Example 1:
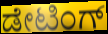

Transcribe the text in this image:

ಡೇಟಿಂಗ್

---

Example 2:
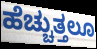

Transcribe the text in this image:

ಹೆಚ್ಚುತ್ತಲೂ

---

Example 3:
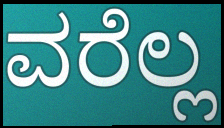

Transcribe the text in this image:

ವರೆಲ್ಲ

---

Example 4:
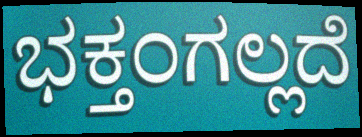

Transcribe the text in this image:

ಭಕ್ತಂಗಲ್ಲದೆ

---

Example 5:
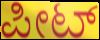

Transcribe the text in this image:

ಪೀಟ್